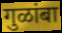
गुळांबा